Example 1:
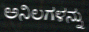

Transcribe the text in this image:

ಅನಿಲಗಳನ್ನು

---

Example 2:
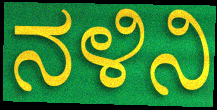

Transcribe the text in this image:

ನಳಿನಿ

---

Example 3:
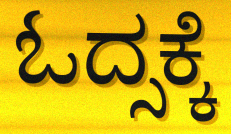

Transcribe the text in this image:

ಓದ್ಸಕ್ಕೆ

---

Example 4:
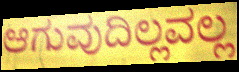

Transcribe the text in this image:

ಆಗುವುದಿಲ್ಲವಲ್ಲ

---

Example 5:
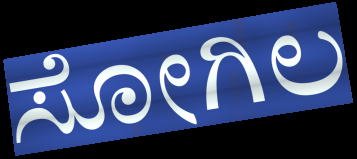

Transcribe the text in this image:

ಸೋಗಿಲ